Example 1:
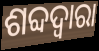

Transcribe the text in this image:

ଶବ୍ଦଦ୍ୱାରା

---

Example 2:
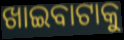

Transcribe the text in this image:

ଖାଇବାଟାକୁ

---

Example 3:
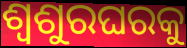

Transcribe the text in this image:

ଶ୍ୱଶୁରଘରକୁ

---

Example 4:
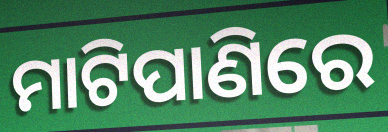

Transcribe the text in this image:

ମାଟିପାଣିରେ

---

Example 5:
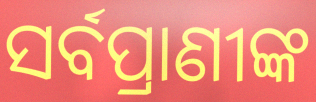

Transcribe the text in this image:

ସର୍ବପ୍ରାଣୀଙ୍କ